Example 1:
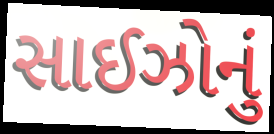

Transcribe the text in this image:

સાઈઝોનું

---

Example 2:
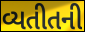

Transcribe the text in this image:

વ્યતીતની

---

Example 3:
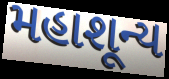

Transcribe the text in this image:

મહાશૂન્ય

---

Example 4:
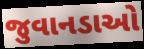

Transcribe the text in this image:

જુવાનડાઓ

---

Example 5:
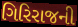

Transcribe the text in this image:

ગિરિરાજની